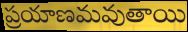
ప్రయాణమవుతాయి